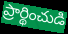
ప్రార్థించుడి